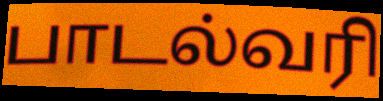
பாடல்வரி